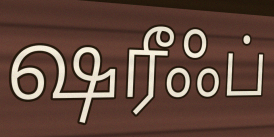
ஷரீஃப்